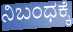
ನಿಬಂಧಕ್ಕೆ